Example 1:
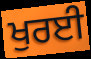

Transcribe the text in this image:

ਖੁਰਈ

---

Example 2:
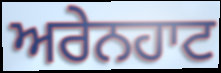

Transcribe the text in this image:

ਅਰੇਨਹਾਟ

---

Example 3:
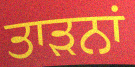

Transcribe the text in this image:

ਤਾੜਨਾਂ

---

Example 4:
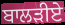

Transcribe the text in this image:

ਬਾਲੜੀਏ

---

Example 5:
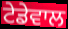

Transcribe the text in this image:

ਟੇਡੇਵਾਲ